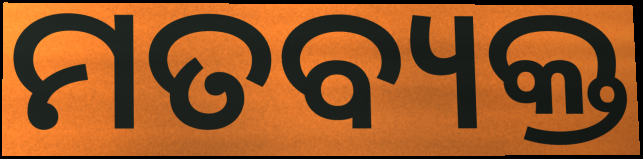
ମତବ୍ୟକ୍ତ